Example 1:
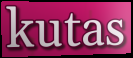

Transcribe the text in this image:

kutas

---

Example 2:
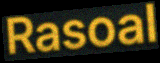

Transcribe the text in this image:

Rasoal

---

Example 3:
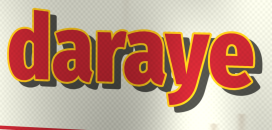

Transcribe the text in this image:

daraye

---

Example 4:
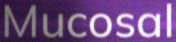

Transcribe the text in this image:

Mucosal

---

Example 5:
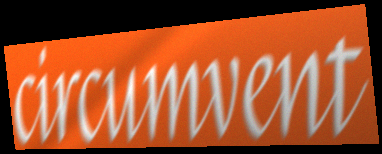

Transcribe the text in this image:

circumvent